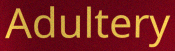
Adultery